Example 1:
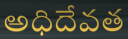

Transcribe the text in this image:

అధిదేవత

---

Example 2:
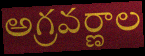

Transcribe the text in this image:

అగ్రవర్ణాల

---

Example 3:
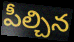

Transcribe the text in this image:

పీల్చిన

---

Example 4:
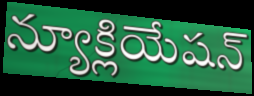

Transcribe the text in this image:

న్యూక్లియేషన్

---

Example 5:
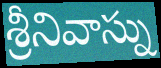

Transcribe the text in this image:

శ్రీనివాస్ను